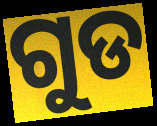
ଗୁଡ